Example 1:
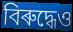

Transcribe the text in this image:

বিৰুদ্ধেও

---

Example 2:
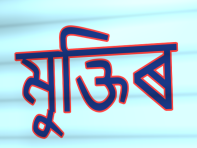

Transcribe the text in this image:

মুক্তিৰ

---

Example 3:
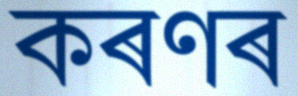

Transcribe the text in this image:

কৰণৰ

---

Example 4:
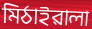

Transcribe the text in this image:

মিঠাইৱালা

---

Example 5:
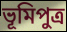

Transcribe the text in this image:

ভূমিপুত্ৰ